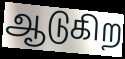
ஆடுகிற